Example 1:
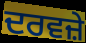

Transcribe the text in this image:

ਦਰਵਜ਼ੇ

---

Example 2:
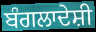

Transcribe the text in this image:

ਬੰਗਲਾਦੇਸ਼ੀ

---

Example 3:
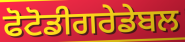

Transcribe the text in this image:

ਫੋਟੋਡੀਗਰੇਡੇਬਲ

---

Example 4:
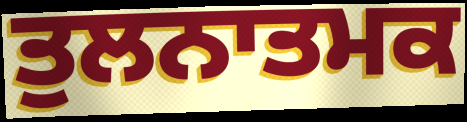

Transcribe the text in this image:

ਤੁਲਨਾਤਮਕ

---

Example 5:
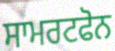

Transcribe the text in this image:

ਸਾਮਰਟਫੋਨ